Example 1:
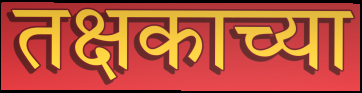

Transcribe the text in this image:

तक्षकाच्या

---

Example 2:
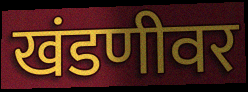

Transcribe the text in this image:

खंडणीवर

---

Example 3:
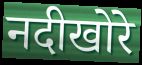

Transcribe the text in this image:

नदीखोरे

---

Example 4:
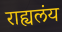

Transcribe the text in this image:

राह्यलंय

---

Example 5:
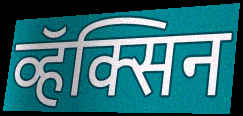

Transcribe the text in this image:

व्हॅक्सिन